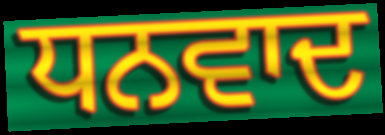
ਧਨਵਾਦ